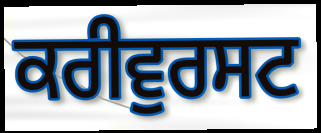
ਕਰੀਵੁਰਸਟ